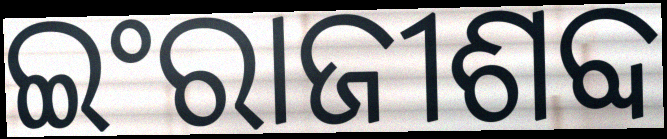
ଇଂରାଜୀଶବ୍ଦ